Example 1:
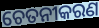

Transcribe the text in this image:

ଚେତନୀକରଣ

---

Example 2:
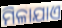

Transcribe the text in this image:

ମିଳାଯାଏ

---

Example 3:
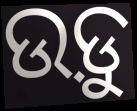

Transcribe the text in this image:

ଉଡ଼ୁ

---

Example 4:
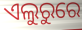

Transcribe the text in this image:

ଏଲୁରୁରେ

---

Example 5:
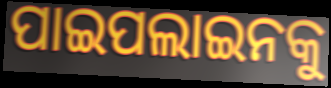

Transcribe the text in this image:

ପାଇପଲାଇନକୁ